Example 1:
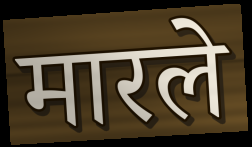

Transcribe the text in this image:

मारले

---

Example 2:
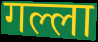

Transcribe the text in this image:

गल्ला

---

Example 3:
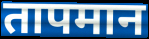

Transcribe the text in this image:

तापमान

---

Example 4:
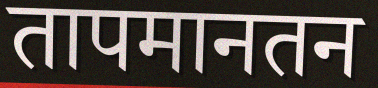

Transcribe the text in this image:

तापमानतन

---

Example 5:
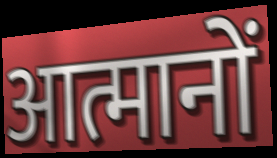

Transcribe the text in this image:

आत्मानों